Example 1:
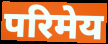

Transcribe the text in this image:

परिमेय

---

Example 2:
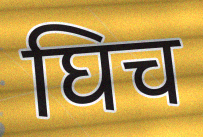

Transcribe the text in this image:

घिच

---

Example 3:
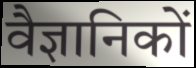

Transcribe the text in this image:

वैज्ञानिकों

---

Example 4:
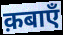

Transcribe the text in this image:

क़बाएँ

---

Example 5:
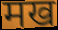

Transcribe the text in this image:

मख